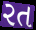
રત